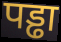
पड्ढा